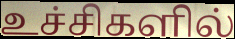
உச்சிகளில்